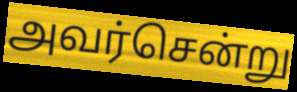
அவர்சென்று